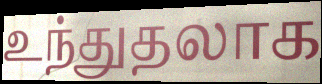
உந்துதலாக